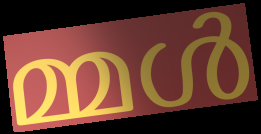
മ്മൾ